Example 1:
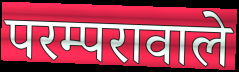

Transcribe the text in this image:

परम्परावाले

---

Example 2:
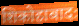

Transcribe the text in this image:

शिकोहाबादः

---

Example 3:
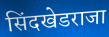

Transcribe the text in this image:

सिंदखेडराजा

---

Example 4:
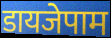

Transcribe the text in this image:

डायजेपाम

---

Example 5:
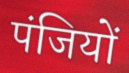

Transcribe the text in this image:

पंजियों